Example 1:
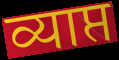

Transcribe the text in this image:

व्याप्त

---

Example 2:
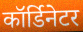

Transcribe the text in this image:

कॉर्डिनेटर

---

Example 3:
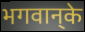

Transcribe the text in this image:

भगवान्‌के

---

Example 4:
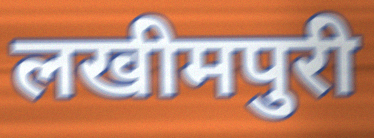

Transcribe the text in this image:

लखीमपुरी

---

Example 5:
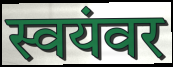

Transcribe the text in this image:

स्वयंवर